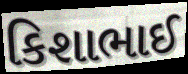
કિશાભાઈ